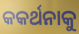
କକର୍ଥନାକୁ